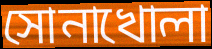
সোনাখোলা